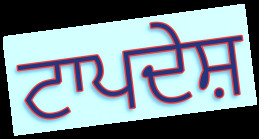
ਟਾਪਦੇਸ਼